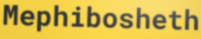
Mephibosheth